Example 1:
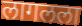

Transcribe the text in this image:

लागलला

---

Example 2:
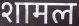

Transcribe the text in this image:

शामल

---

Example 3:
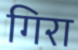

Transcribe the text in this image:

गिरा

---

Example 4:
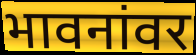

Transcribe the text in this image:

भावनांवर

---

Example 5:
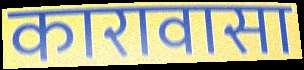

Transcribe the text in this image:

कारावासा